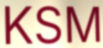
KSM